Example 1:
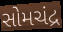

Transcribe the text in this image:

સોમચંદ્ર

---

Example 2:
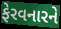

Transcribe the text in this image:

ફેરવનારને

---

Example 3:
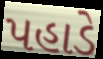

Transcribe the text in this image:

પહાડે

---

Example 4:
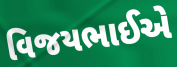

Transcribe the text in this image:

વિજયભાઈએ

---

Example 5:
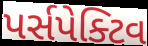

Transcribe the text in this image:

પર્સપેક્ટિવ